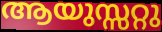
ആയുസ്സറ്റു